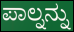
ಪಾಲ್ನನ್ನು